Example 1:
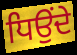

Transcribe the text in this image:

ਧਿਉਂਦੇ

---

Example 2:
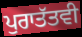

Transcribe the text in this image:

ਪੁਰਾਤੱਤਵੀ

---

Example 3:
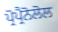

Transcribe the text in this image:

ਪ੍ਰੋਪ੍ਰੈਨੋਲੋਲ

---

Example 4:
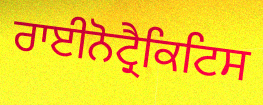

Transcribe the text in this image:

ਰਾਈਨੋਟ੍ਰੈਕਿਟਿਸ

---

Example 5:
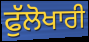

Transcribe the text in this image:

ਫੁੱਲੋਖਾਰੀ